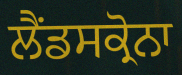
ਲੈਂਡਸਕ੍ਰੋਨਾ